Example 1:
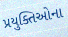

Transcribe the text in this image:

પ્રયુક્તિઓના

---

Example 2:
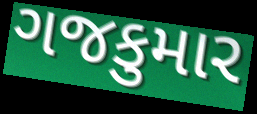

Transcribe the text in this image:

ગજકુમાર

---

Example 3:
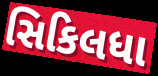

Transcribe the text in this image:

સિકિલધા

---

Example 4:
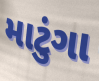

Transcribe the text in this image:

માટુંગા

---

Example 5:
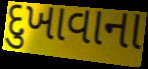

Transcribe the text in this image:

દુખાવાના